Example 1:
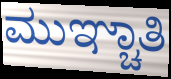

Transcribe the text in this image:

ಮುಞ್ಚಾತಿ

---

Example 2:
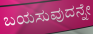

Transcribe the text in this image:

ಬಯಸುವುದನ್ನೇ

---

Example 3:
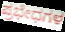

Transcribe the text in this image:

ಪ್ರಭೇಧಗಳ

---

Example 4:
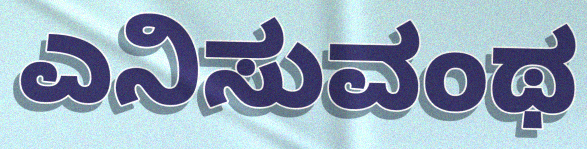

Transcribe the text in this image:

ಎನಿಸುವಂಥ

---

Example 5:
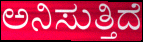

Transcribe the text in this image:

ಅನಿಸುತ್ತಿದೆ